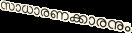
സാധാരണക്കാരനും